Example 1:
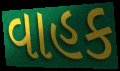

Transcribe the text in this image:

વાહક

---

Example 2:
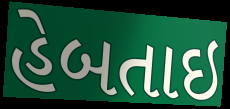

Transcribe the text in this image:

હેબતાઇ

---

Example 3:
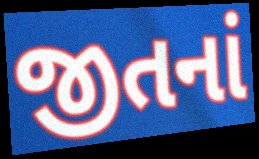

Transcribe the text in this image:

જીતનાં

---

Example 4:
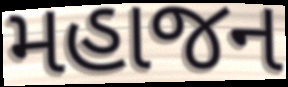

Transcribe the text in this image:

મહાજન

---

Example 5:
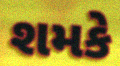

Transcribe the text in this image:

શમકે